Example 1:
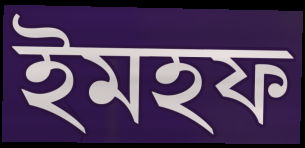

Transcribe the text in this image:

ইমহফ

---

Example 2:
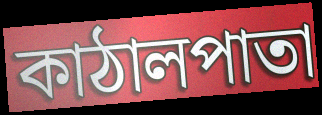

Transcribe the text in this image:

কাঠালপাতা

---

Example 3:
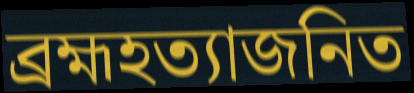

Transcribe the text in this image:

ব্রহ্মহত্যাজনিত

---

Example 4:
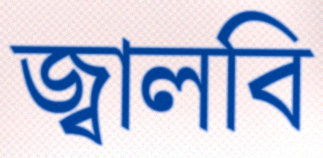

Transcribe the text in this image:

জ্বালবি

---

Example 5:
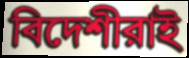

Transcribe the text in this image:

বিদেশীরাই